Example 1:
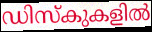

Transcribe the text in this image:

ഡിസ്കുകളിൽ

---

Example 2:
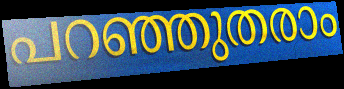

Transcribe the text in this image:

പറഞ്ഞുതരാം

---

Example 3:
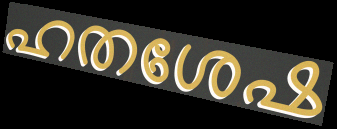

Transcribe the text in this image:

ഹതശേഷ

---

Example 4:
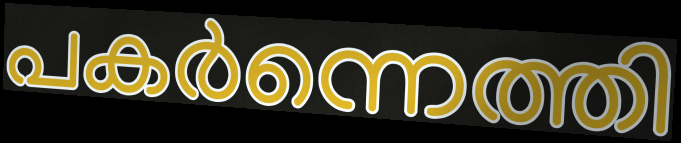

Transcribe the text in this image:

പകർന്നെത്തി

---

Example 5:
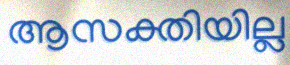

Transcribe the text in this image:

ആസക്തിയില്ല